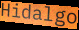
Hidalgo